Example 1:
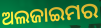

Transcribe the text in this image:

ଅଲଜାଇମର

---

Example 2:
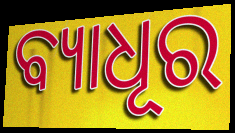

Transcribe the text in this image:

ବ୍ୟାଧୂର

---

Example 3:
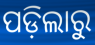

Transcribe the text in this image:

ପଡ଼ିଲାରୁ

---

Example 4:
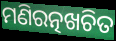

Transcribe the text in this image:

ମଣିରତ୍ନଖଚିତ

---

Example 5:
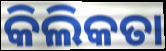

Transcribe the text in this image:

କିଲିକତା